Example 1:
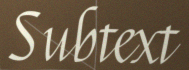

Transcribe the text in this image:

Subtext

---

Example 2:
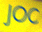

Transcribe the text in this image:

JOC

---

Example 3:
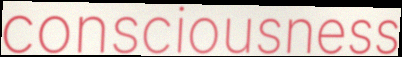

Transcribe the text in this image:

consciousness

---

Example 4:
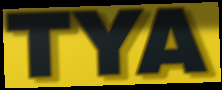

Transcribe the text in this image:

TYA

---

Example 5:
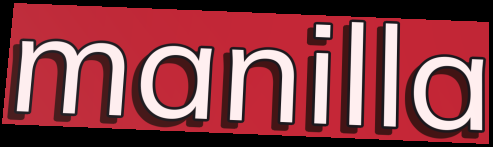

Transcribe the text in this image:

manilla